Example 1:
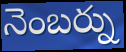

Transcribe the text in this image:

నెంబర్ను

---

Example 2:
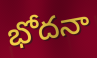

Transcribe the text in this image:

భోదనా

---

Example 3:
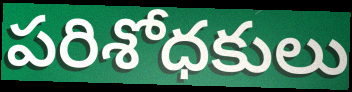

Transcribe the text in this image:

పరిశోధకులు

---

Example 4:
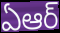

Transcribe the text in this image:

ఏఆర్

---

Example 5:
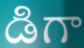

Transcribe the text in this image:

డిగా